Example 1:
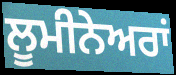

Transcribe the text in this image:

ਲੂਮੀਨੇਅਰਾਂ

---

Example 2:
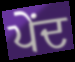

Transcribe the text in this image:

ਪੇਂਦ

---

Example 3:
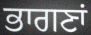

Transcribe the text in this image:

ਭਾਗਣਾਂ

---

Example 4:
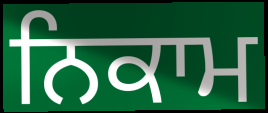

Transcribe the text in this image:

ਨਿਕਾਮ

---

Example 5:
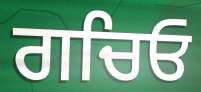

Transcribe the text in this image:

ਗਚਿਓ